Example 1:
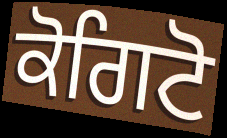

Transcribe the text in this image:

ਕੋਗਿਟੋ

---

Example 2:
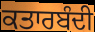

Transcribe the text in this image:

ਕਤਾਰਬੰਦੀ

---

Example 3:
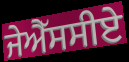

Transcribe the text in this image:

ਜੇਐੱਸਸੀਏ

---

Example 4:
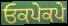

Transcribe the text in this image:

ਓਕਪੇਕਪੇ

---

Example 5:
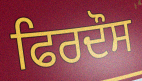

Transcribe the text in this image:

ਫਿਰਦੌਸ